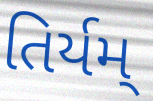
તિર્યમ્